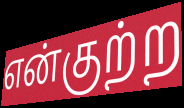
என்குற்ற